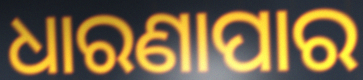
ଧାରଣାପାର